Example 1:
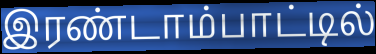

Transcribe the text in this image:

இரண்டாம்பாட்டில்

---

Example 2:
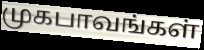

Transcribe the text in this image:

முகபாவங்கள்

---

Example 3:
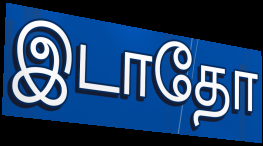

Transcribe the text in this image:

இடாதோ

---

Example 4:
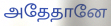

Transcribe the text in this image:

அதேதானே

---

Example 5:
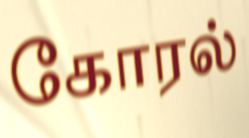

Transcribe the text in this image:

கோரல்